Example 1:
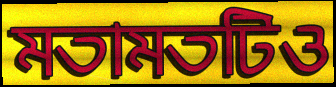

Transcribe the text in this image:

মতামতটিও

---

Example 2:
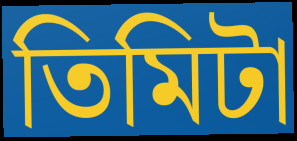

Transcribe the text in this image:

তিমিটা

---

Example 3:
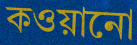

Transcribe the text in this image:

কওয়ানো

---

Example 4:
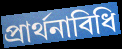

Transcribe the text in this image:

প্রার্থনাবিধি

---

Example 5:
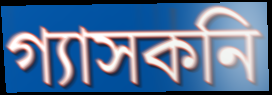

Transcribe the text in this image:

গ্যাসকনি